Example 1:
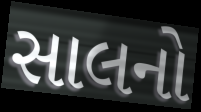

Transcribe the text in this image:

સાલનો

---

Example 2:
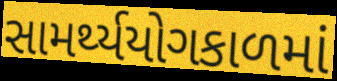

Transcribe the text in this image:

સામર્થ્યયોગકાળમાં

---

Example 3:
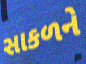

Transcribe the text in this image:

સાકળને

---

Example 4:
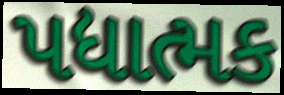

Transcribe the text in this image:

પદ્યાત્મક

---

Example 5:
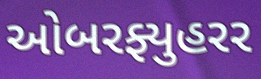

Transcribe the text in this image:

ઓબરફ્યુહરર